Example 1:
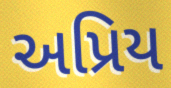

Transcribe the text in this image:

અપ્રિય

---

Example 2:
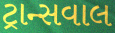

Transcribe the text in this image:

ટ્રાન્સવાલ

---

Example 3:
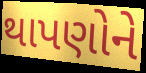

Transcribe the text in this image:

થાપણોને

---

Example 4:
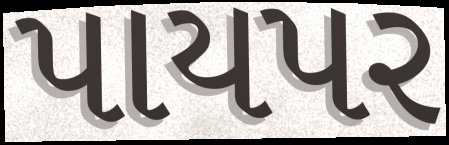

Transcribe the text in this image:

પાયપર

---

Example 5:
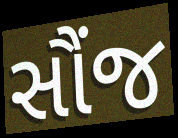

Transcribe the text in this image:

સૌંજ